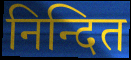
निन्दित